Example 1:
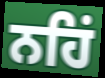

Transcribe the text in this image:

ਨਹਿਂ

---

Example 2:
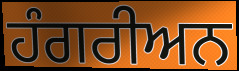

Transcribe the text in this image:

ਹੰਗਰੀਅਨ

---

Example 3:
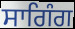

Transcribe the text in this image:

ਸਾਗਿੰਗ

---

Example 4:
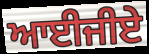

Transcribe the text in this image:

ਆਈਜੀਏ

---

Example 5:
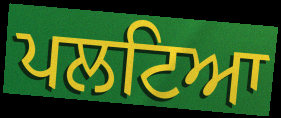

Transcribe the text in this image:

ਪਲਟਿਆ